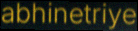
abhinetriye